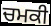
ਚਮਕੀ